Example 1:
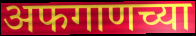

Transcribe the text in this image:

अफगाणच्या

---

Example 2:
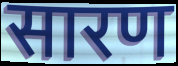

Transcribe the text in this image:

सारण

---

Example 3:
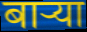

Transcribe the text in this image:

बाऱ्या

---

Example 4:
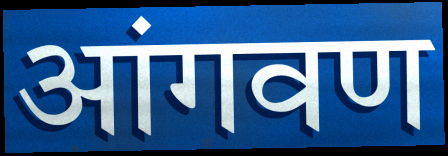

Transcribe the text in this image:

आंगवण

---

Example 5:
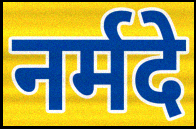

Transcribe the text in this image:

नर्मदे